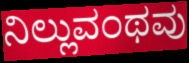
ನಿಲ್ಲುವಂಥವು